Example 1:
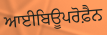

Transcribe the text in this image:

ਆਈਬਿਊਪਰੋਫ਼ੈਨ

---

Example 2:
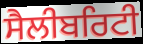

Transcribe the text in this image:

ਸੈਲੀਬਰਿਟੀ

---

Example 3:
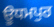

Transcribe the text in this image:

ਊਧਮਪੁਰ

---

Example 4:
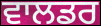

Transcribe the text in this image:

ਵਾਲਡਰ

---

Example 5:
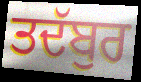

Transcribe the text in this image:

ਤਦੱਬੁਰ